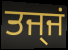
ਤਜ੍ਜਂ